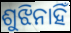
ଶୁଝିନାହିଁ